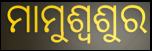
ମାମୁଶ୍ବଶୁର